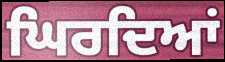
ਘਿਰਦਿਆਂ